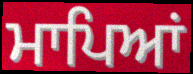
ਮਾਪਿਆਂ